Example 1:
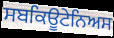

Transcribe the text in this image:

ਸਬਕਿਊਟੇਨਿਅਸ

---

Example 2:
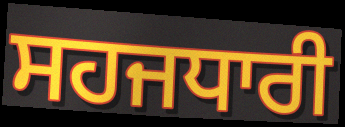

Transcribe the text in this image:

ਸਹਜਧਾਰੀ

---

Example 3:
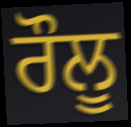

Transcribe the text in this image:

ਰੌਲੂ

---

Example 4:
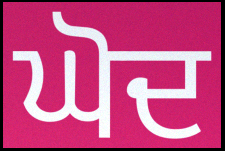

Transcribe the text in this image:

ਘੋਦ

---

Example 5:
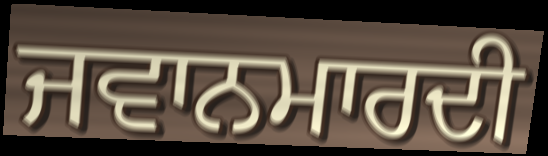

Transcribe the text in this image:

ਜਵਾਨਮਾਰਦੀ